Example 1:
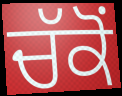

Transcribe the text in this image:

ਚੱਕੋਂ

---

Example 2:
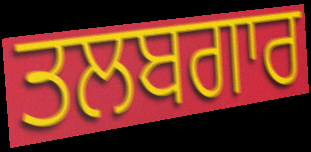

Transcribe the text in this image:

ਤਲਬਗਾਰ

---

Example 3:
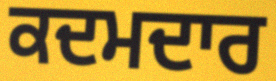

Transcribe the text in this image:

ਕਦਮਦਾਰ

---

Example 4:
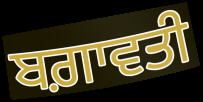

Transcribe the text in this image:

ਬਗ਼ਾਵਤੀ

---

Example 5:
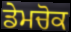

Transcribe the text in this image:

ਡੇਮਚੋਕ